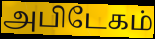
அபிடேகம்